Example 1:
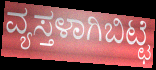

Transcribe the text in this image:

ವ್ಯಸ್ತಳಾಗಿಬಿಟ್ಟೆ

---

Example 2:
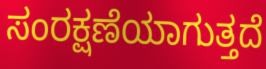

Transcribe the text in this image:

ಸಂರಕ್ಷಣೆಯಾಗುತ್ತದೆ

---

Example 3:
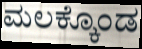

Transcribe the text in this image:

ಮಲಕ್ಕೊಂಡ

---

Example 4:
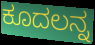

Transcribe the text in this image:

ಕೂದಲನ್ನ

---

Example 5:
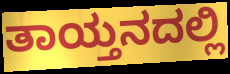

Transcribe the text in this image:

ತಾಯ್ತನದಲ್ಲಿ